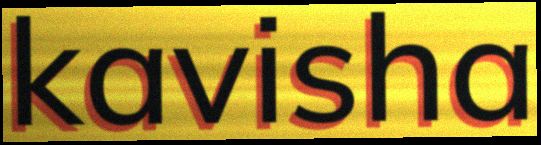
kavisha